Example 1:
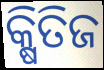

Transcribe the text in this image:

କ୍ଷିତିଜ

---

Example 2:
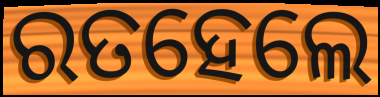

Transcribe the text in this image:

ରତହେଲେ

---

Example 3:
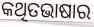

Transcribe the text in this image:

କଥିତଭାଷାର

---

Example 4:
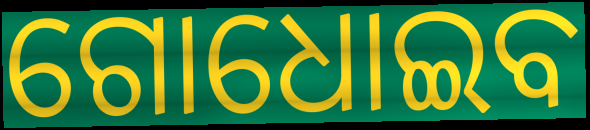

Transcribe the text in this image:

ଗୋଧୋଇବ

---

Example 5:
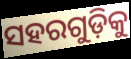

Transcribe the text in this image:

ସହରଗୁଡ଼ିକୁ